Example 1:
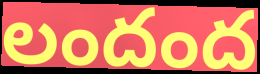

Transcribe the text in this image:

లందంద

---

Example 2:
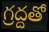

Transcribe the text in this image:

గ్రద్దతో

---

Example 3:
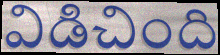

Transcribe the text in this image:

విడిచింది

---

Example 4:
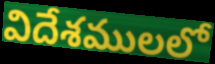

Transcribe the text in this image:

విదేశములలో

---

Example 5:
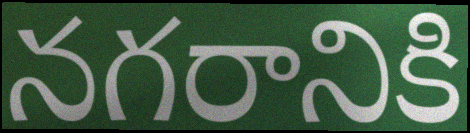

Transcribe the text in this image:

నగరానికి